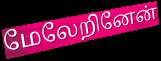
மேலேறினேன்